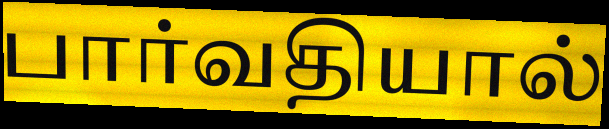
பார்வதியால்